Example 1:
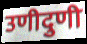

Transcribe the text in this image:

उणीदुणी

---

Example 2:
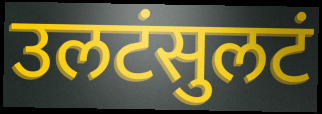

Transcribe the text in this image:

उलटंसुलटं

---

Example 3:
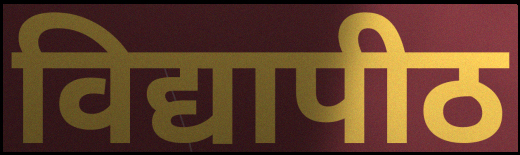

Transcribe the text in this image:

विद्यापीठ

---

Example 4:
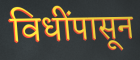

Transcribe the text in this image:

विधींपासून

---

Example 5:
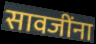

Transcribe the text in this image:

सावजींना